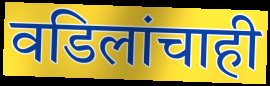
वडिलांचाही